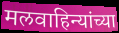
मलवाहिन्यांच्या